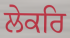
ਲੇਕਰਿ